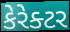
કેરેક્ટર